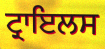
ਟ੍ਰਾਇਲਸ